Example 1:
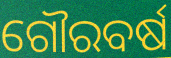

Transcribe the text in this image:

ଗୌରବର୍ଷ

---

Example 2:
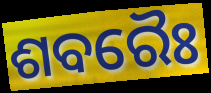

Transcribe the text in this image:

ଶବରୈଃ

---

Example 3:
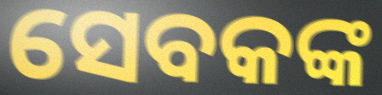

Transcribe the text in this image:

ସେବକଙ୍କ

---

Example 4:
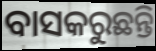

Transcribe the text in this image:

ବାସକରୁଛନ୍ତି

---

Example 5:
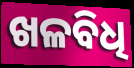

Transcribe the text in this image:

ଖଳବିଧି